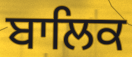
ਬਾਲਿਕ